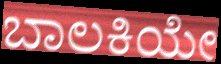
ಬಾಲಕಿಯೇ